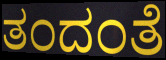
ತಂದಂತೆ